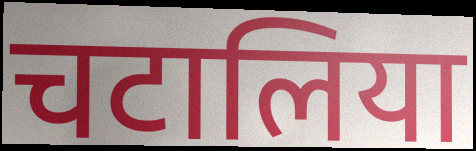
चटालिया